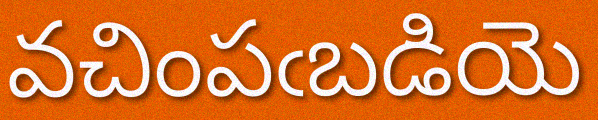
వచింపఁబడియె